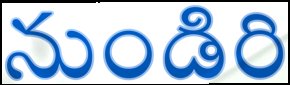
నుండిరి